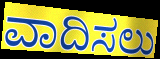
ವಾದಿಸಲು